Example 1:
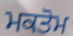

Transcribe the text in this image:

ਮਕਤੋਮ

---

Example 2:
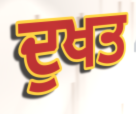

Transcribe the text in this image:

ਦੁਖਤ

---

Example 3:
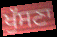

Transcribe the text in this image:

ਖੁੱਸਣਾ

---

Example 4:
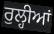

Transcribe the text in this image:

ਰੁਲ੍ਹੀਆਂ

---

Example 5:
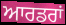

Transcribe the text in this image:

ਆਰਡਰਾਂ